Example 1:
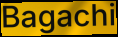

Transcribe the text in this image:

Bagachi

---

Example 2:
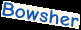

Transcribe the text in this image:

Bowsher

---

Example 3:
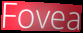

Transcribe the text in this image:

Fovea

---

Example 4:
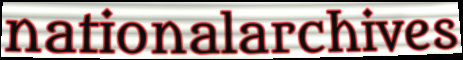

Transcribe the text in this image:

nationalarchives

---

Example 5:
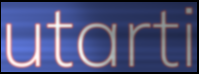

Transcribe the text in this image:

utarti